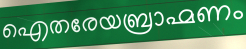
ഐതരേയബ്രാഹ്മണം